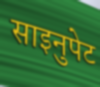
साइनुपेट